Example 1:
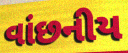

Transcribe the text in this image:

વાંછનીય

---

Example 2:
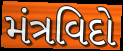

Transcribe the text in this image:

મંત્રવિદો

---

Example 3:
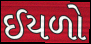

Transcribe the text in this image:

ઈયળો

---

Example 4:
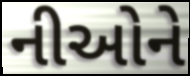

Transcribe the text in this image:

નીઓને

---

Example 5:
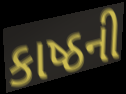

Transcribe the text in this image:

કાષ્ઠની